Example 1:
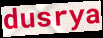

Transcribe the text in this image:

dusrya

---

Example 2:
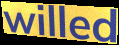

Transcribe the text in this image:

willed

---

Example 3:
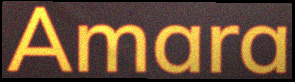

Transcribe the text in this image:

Amara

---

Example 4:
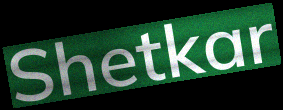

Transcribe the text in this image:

Shetkar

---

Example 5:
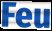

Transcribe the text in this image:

Feu